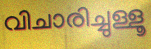
വിചാരിച്ചുള്ളൂ